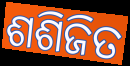
ଶଶିଜିତ